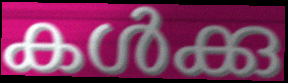
കൾക്കു